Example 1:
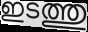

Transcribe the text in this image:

ഇടത്തു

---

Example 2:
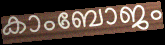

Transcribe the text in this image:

കാംബോജം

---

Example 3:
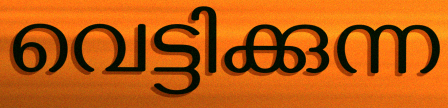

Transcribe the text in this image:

വെട്ടിക്കുന്ന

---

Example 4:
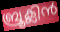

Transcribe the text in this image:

ബ്രൂക്ലിൻ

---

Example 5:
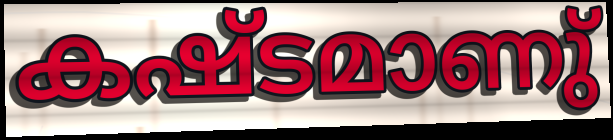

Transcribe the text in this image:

കഷ്ടമാണു്